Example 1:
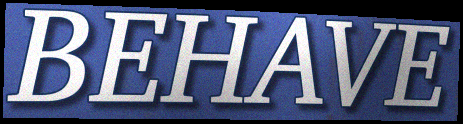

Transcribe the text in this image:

BEHAVE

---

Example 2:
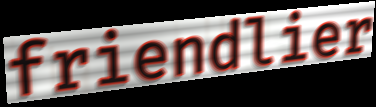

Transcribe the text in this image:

friendlier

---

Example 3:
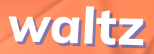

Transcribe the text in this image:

waltz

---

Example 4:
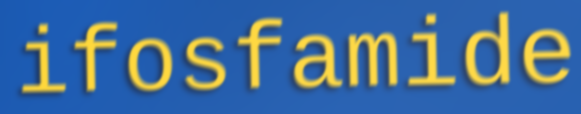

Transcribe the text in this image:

ifosfamide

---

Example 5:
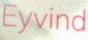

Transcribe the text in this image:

Eyvind